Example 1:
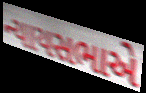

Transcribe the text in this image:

ન્યાયસભાએ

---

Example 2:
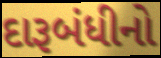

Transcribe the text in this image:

દારૂબંધીનો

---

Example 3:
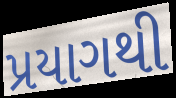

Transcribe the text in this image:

પ્રયાગથી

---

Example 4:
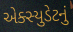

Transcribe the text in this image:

એક્સ્યુડેટનું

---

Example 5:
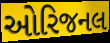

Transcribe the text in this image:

ઓરિજનલ